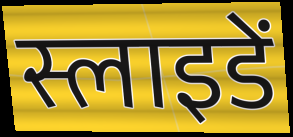
स्लाइडें